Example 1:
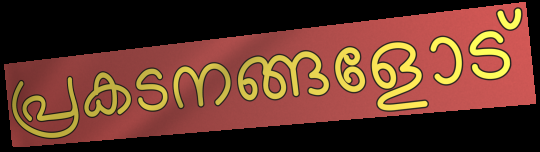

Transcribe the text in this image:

പ്രകടനങ്ങളോട്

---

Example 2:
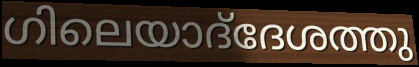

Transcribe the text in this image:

ഗിലെയാദ്‌ദേശത്തു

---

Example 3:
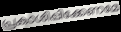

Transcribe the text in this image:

പ്രകാശിപ്പിക്കേണമേ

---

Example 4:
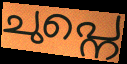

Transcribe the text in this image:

ചുപ്നെ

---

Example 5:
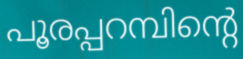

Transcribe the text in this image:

പൂരപ്പറമ്പിന്റെ